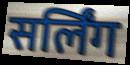
सर्लिंग